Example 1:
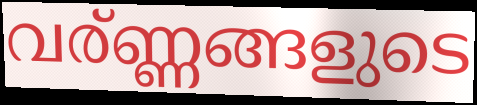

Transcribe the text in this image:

വര്ണ്ണങ്ങളുടെ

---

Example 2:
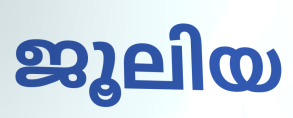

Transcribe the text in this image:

ജൂലിയ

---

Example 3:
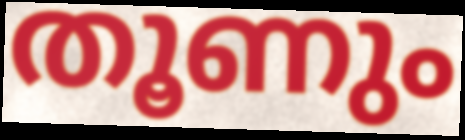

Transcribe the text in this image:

തൂണും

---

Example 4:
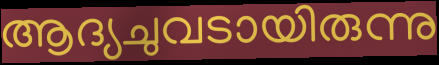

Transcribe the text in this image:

ആദ്യചുവടായിരുന്നു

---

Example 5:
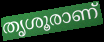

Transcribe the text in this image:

തൃശൂരാണ്